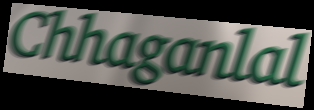
Chhaganlal